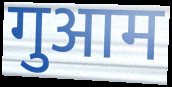
गुआम